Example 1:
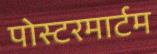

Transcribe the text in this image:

पोस्टरमार्टम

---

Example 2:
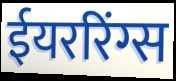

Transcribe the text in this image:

ईयररिंग्स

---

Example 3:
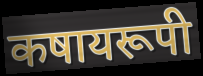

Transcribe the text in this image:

कषायरूपी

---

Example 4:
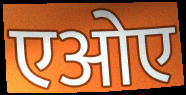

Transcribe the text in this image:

एओए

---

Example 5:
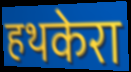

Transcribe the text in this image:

हथकेरा